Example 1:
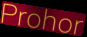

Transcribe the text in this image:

Prohor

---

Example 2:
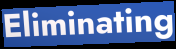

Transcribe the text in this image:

Eliminating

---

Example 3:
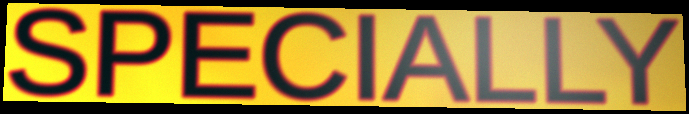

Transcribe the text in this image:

SPECIALLY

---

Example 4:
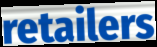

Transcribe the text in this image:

retailers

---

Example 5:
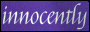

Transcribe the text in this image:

innocently